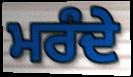
ਮਰੰਦੇ